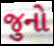
જુનો